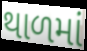
થાળમાં